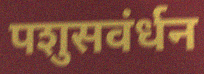
पशुसवंर्धन